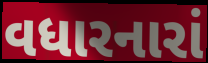
વધારનારાં